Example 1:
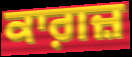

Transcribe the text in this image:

ਕਾਗ਼ਜ਼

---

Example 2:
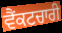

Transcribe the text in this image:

ਵੈਂਕਟਚਾਰੀ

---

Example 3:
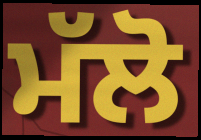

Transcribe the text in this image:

ਮੱਲੋ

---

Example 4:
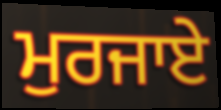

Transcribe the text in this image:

ਮੁਰਜਾਏ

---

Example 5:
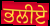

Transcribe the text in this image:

ਭਲੀਏ